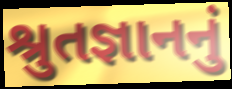
શ્રુતજ્ઞાનનું